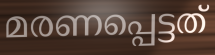
മരണപ്പെട്ടത്